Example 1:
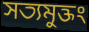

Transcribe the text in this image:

সত্যমুক্তং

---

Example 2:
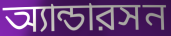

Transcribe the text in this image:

অ্যান্ডারসন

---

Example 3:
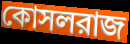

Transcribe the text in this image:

কোসলরাজ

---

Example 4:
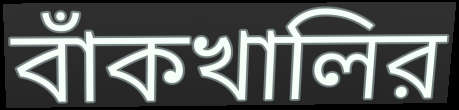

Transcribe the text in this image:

বাঁকখালির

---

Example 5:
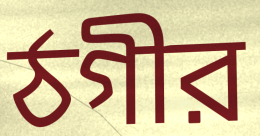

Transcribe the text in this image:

ঠগীর